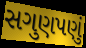
સગુણપણું